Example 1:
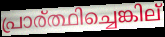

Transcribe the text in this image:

പ്രാര്ത്ഥിച്ചെങ്കില്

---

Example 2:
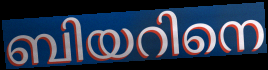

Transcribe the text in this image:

ബിയറിനെ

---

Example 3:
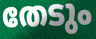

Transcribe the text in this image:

തേടും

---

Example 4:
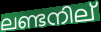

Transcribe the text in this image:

ലണ്ടനില്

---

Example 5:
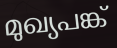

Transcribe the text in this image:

മുഖ്യപങ്ക്